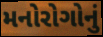
મનોરોગોનું